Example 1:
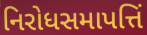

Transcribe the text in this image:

નિરોધસમાપત્તિં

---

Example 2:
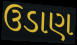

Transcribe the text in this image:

ઉડાણ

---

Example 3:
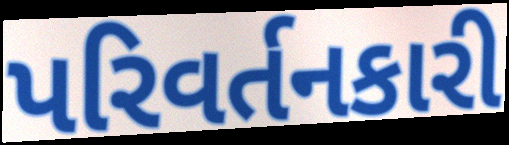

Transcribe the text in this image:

પરિવર્તનકારી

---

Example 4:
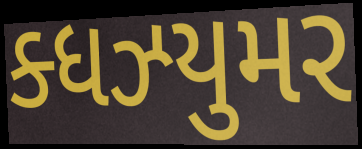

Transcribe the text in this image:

ક્ધઝ્યુમર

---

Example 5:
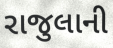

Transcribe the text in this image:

રાજુલાની